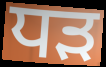
ਧੜ